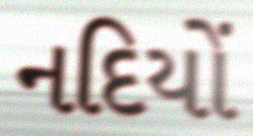
નદિયોં